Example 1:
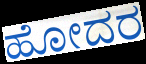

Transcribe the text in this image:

ಹೋದರ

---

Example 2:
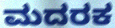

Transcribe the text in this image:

ಮದರಕ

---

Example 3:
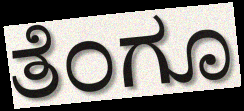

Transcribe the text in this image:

ತೆಂಗೂ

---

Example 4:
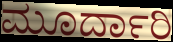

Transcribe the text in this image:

ಮೂರ್ದಾರಿ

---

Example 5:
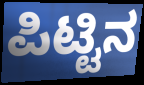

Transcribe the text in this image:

ಪಿಟ್ಟಿನ